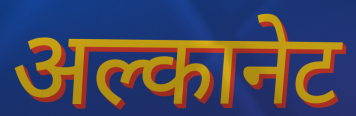
अल्कानेट